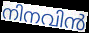
നിനവിൻ